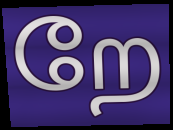
றே